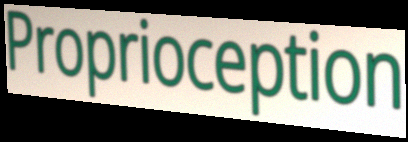
Proprioception